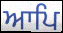
ਆਪਿ